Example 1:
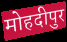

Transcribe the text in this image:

मोहदीपुर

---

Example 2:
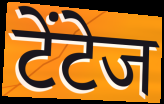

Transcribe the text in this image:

टेंटेज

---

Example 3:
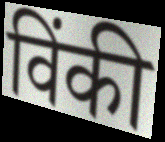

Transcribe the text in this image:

विंकी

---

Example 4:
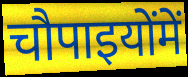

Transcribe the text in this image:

चौपाइयोंमें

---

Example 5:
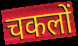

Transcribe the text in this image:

चकलों